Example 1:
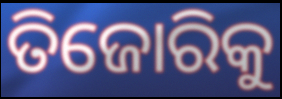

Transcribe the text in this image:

ତିଜୋରିକୁ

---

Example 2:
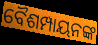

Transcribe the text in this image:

ବୈଶମ୍ପାୟନଙ୍କ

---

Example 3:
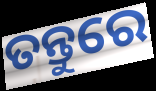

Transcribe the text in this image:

ତନ୍ତୁରେ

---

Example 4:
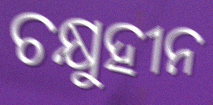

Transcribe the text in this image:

ଚକ୍ଷୁହୀନ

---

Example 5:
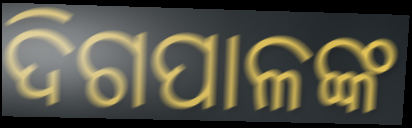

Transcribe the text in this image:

ଦିଗପାଳଙ୍କ